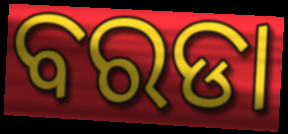
ବରଡା